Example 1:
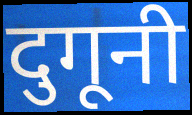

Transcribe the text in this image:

दुगूनी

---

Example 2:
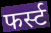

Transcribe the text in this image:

फर्स्‍ट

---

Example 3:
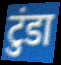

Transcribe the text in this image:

टुंडा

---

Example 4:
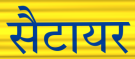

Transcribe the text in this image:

सैटायर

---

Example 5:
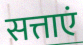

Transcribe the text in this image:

सत्ताएं